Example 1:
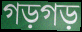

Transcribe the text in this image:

গড়গড়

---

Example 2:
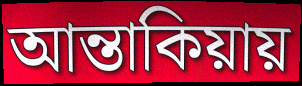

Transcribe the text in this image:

আন্তাকিয়ায়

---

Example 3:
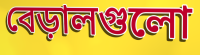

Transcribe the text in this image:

বেড়ালগুলো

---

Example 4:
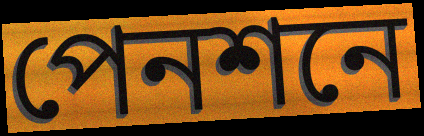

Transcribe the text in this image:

পেনশনে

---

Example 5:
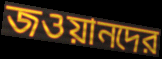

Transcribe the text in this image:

জওয়ানদের